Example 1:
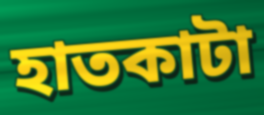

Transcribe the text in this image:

হাতকাটা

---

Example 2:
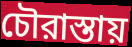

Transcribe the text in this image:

চৌরাস্তায়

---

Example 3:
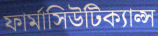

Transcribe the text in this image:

ফার্মাসিউটিক্যাল্স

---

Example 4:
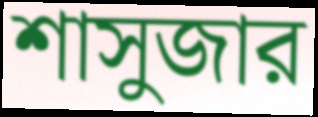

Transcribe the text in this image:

শাসুজার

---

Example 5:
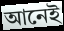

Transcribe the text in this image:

আনেই